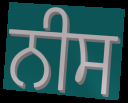
ਨੀਸ